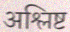
अश्लिष्ट